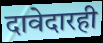
दावेदारही